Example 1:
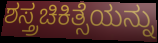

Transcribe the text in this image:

ಶಸ್ತ್ರಚಿಕಿತ್ಸೆಯನ್ನು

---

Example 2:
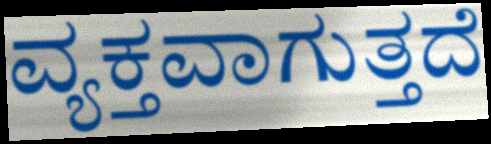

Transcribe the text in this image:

ವ್ಯಕ್ತವಾಗುತ್ತದೆ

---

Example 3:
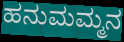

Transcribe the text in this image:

ಹನುಮಮ್ಮನ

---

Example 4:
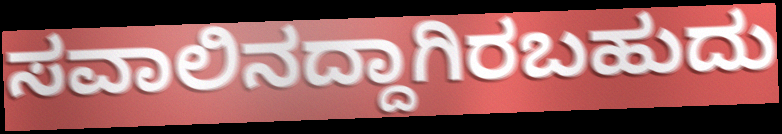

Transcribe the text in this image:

ಸವಾಲಿನದ್ದಾಗಿರಬಹುದು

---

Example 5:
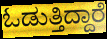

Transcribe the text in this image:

ಓಡುತ್ತಿದ್ದಾರೆ